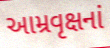
આમ્રવૃક્ષનાં